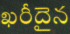
ఖరీదైన